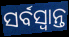
ସର୍ବସ୍ୱାନ୍ତ